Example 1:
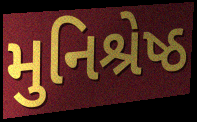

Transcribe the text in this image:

મુનિશ્રેષ્ઠ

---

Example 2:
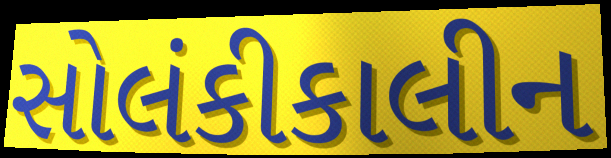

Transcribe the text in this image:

સોલંકીકાલીન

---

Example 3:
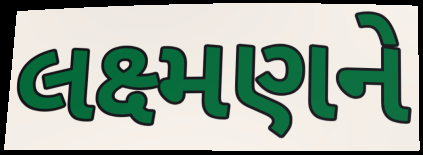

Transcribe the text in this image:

લક્ષ્મણને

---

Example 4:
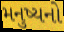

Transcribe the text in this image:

મનુષ્યનો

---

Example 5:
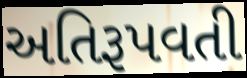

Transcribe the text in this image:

અતિરૂપવતી